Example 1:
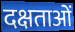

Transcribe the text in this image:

दक्षताओं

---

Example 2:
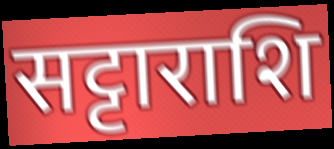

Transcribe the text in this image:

सट्टाराशि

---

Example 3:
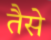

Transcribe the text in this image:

तैसे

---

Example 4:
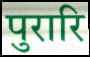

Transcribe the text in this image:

पुरारि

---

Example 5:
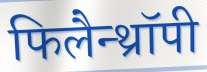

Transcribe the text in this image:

फिलैन्थ्रॉपी